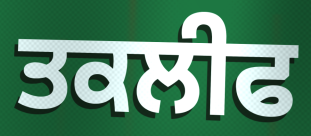
ਤਕਲੀਫ